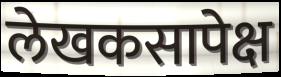
लेखकसापेक्ष